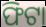
ଫିଟା